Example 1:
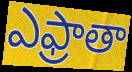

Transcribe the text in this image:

ఎఫ్రాతా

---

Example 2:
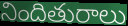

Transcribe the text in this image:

నిందితురాలు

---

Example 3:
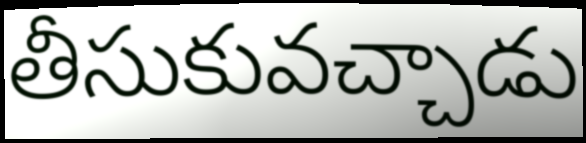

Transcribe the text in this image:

తీసుకువచ్చాడు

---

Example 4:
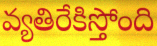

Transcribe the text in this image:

వ్యతిరేకిస్తోంది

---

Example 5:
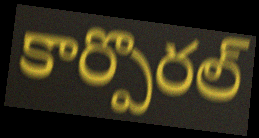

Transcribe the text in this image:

కార్పొరల్